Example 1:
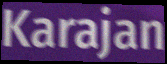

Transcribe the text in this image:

Karajan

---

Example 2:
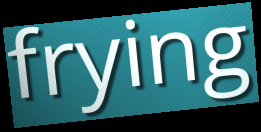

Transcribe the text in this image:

frying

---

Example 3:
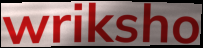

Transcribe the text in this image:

wriksho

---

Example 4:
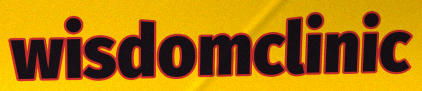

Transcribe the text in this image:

wisdomclinic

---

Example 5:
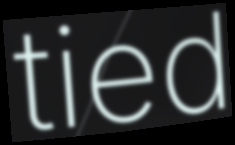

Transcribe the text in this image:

tied